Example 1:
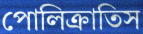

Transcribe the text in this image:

পোলিক্রাতিস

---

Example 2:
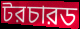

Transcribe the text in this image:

টরচারড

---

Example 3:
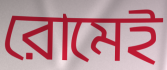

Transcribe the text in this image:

রোমেই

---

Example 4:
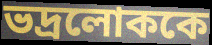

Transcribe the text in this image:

ভদ্রলোককে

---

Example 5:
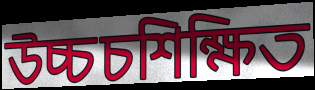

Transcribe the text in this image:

উচ্চচশিক্ষিত